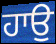
ਹਾਉ